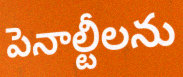
పెనాల్టీలను